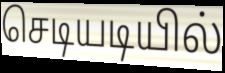
செடியடியில்